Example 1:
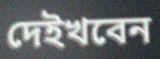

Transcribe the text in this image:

দেইখবেন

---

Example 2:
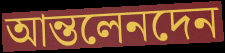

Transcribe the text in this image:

আন্তলেনদেন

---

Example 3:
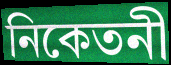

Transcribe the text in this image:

নিকেতনী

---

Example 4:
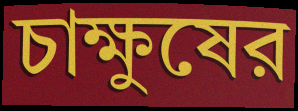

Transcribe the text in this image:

চাক্ষুষের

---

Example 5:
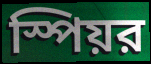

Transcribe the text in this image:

স্পিয়র